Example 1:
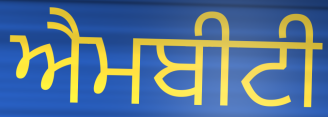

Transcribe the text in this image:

ਐਮਬੀਟੀ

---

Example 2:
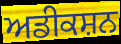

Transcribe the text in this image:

ਅਡੀਕਸ਼ਨ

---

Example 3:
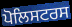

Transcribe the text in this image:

ਪੋਲਿਸਟਰਸ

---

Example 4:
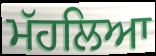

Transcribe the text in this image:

ਮੱਹਲਿਆ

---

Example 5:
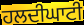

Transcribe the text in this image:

ਹਲਦੀਘਾਟੀ